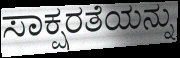
ಸಾಕ್ಷರತೆಯನ್ನು